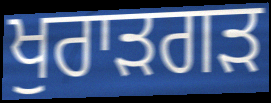
ਖੁਰਾੜਗੜ